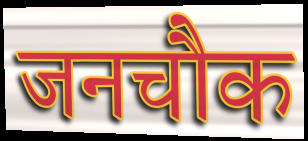
जनचौक